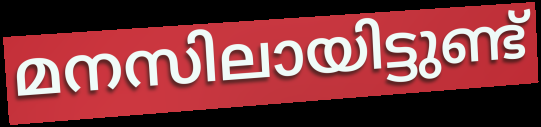
മനസിലായിട്ടുണ്ട്